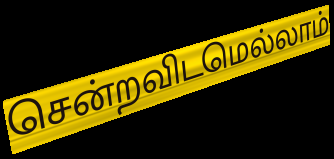
சென்றவிடமெல்லாம்